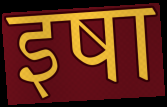
इषा